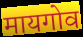
मायगोव